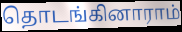
தொடங்கினாராம்